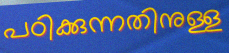
പഠിക്കുന്നതിനുള്ള